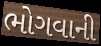
ભોગવાની